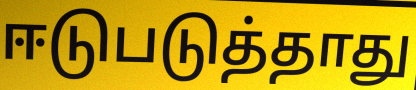
ஈடுபடுத்தாது